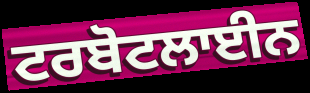
ਟਰਬੋਟਲਾਈਨ